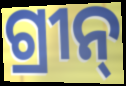
ଗ୍ରୀନ୍